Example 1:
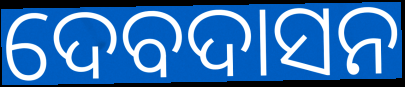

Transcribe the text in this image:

ଦେବଦାସନ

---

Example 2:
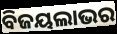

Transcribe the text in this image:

ବିଜୟଲାଭର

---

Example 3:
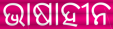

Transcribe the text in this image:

ଭାଷାହୀନ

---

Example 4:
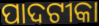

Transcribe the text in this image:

ପାଦଟୀକା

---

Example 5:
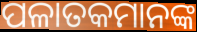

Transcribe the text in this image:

ପଳାତକମାନଙ୍କ